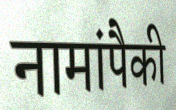
नामांपैकी